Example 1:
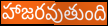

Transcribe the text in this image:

హాజరవుతుంది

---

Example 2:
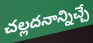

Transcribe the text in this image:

చల్లదనాన్నిచ్చే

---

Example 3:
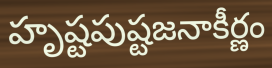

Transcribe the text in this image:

హృష్టపుష్టజనాకీర్ణం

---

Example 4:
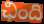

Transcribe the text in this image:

ఛింది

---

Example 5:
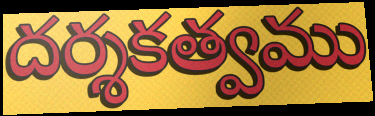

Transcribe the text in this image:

దర్శకత్వము